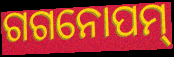
ଗଗନୋପମ୍